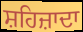
ਸ਼ਹਿਜ਼ਾਦਾ